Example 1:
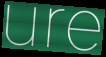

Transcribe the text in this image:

ure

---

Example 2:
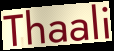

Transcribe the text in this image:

Thaali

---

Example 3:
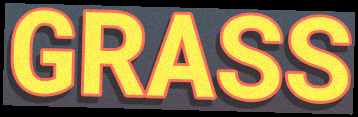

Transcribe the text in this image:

GRASS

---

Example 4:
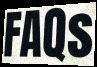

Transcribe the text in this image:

FAQs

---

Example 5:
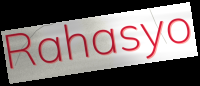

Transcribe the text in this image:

Rahasyo